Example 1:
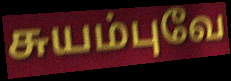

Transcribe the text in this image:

சுயம்புவே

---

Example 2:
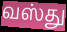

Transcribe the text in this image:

வஸ்து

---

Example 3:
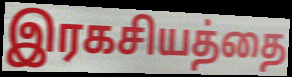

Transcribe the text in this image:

இரகசியத்தை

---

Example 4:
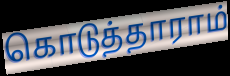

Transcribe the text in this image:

கொடுத்தாராம்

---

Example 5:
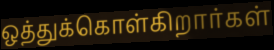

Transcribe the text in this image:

ஒத்துக்கொள்கிறார்கள்